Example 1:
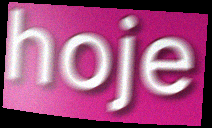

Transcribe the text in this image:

hoje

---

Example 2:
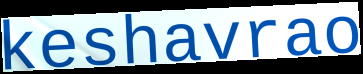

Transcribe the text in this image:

keshavrao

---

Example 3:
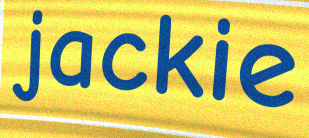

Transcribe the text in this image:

jackie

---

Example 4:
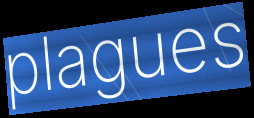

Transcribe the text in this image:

plagues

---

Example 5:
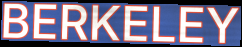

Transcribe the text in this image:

BERKELEY